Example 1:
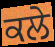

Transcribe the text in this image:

ਕਲੇ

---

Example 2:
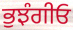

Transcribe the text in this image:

ਭੁਝੰਗੀਓ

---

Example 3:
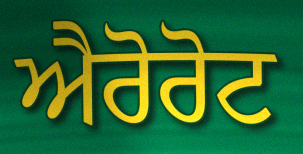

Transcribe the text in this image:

ਐਰੋਰੋਟ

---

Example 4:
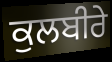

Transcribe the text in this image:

ਕੁਲਬੀਰੇ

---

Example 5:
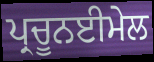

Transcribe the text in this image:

ਪ੍ਰਚੂਨਈਮੇਲ